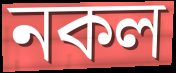
নকল